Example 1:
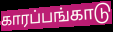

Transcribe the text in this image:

காரப்பங்காடு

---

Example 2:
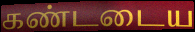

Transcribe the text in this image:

கண்டடைய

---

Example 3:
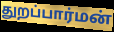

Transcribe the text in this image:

துறப்பார்மன்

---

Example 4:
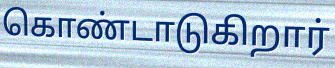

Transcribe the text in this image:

கொண்டாடுகிறார்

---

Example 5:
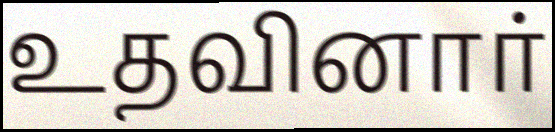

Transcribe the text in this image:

உதவினார்